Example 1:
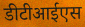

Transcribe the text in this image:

डीटीआईएस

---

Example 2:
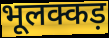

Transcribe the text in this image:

भूलक्कड़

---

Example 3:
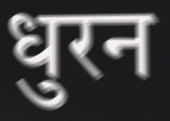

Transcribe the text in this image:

धुरन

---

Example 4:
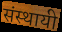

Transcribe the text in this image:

संस्थायी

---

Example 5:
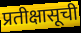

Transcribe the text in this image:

प्रतीक्षासूची